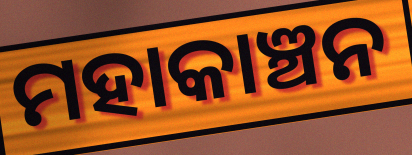
ମହାକାଞ୍ଚନ